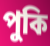
পুকি